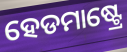
ହେଡମାଷ୍ଟ୍ରେ